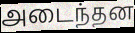
அடைந்தன